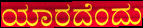
ಯಾರದೆಂದು